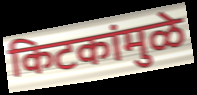
किटकांमुळे